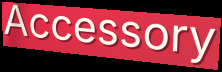
Accessory